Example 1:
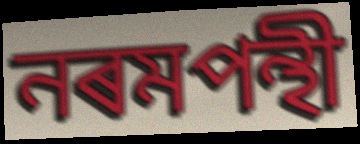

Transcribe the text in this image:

নৰমপন্থী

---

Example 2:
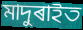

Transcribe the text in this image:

মাদুৰাইত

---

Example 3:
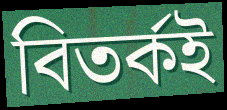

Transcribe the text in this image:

বিতৰ্কই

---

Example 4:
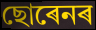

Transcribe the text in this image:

ছোৰেনৰ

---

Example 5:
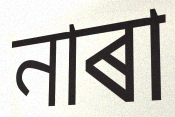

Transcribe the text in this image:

নাৰা